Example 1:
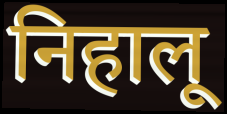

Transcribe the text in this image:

निहालू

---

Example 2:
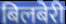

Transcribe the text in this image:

बिलबेरी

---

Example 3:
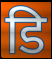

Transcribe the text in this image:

डि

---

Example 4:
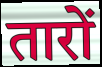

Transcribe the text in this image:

तारों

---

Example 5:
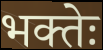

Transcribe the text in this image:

भक्तेः